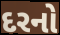
દરનો